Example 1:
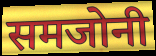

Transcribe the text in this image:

समजोनी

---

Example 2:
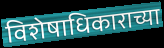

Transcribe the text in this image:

विशेषाधिकाराच्या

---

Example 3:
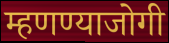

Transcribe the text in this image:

म्हणण्याजोगी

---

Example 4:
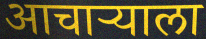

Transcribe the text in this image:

आचाऱ्याला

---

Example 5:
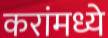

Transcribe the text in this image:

करांमध्ये